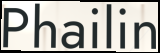
Phailin